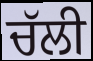
ਚੱਲੀ